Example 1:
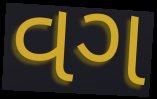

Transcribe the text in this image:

વગ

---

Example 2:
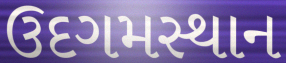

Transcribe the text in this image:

ઉદગમસ્થાન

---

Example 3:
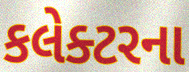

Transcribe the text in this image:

કલેક્ટરના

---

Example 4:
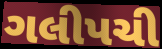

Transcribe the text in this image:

ગલીપચી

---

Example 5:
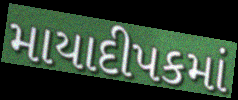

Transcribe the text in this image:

માયાદીપકમાં